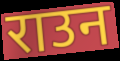
राउन